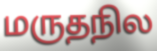
மருதநில